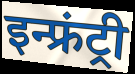
इन्फ्रंट्री